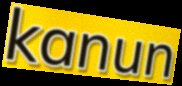
kanun